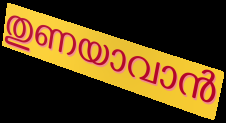
തുണയാവാൻ